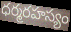
ధర్మరహస్యం